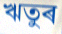
ঋতুৰ